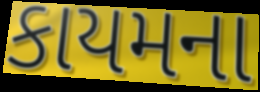
કાયમના